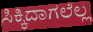
ಸಿಕ್ಕಿದಾಗಲೆಲ್ಲ